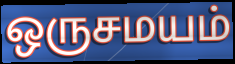
ஒருசமயம்